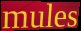
mules